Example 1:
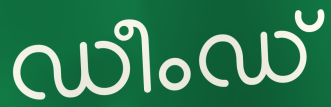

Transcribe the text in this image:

ഡീംഡ്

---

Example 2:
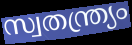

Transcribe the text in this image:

സ്വതന്ത്ര്യം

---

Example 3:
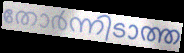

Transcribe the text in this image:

തോർന്നിടാത്ത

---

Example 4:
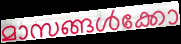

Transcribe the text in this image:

മാസങ്ങൾക്കോ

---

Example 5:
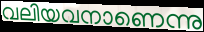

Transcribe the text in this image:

വലിയവനാണെന്നു